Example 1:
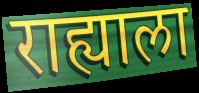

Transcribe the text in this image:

राह्याला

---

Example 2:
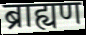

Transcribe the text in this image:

ब्राह्यण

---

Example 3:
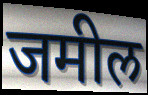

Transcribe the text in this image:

जमील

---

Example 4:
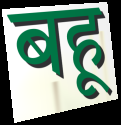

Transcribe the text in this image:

बहू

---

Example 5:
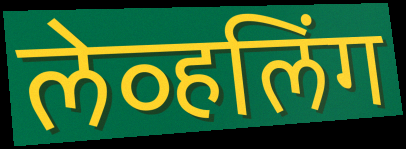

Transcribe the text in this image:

लेव्हलिंग